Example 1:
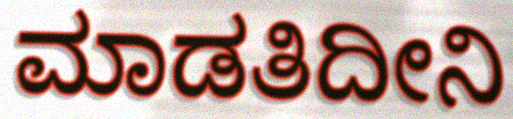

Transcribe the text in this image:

ಮಾಡತಿದೀನಿ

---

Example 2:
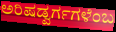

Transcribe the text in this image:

ಅರಿಷಡ್ವರ್ಗಗಳೆಂಬ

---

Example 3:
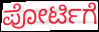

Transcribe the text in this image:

ಪೋರ್ಟಿಗೆ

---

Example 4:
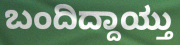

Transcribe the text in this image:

ಬಂದಿದ್ದಾಯ್ತು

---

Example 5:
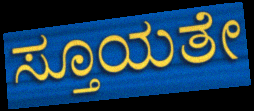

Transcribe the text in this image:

ಸ್ತೂಯತೇ